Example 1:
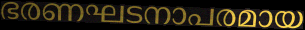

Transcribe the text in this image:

ഭരണഘടനാപരമായ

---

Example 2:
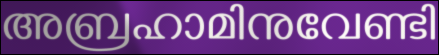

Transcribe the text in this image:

അബ്രഹാമിനുവേണ്ടി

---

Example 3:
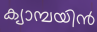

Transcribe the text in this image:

ക്യാമ്പയിൻ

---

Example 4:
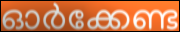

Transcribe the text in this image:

ഓർക്കേണ്ട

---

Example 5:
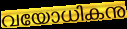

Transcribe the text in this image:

വയോധികനു